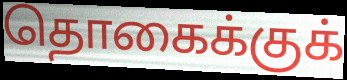
தொகைக்குக்